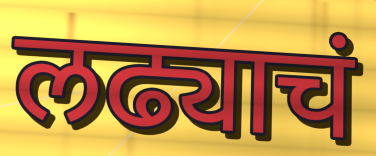
लढ्याचं